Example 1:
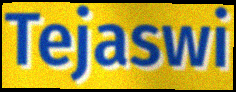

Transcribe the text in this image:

Tejaswi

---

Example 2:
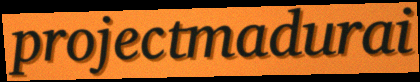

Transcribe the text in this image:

projectmadurai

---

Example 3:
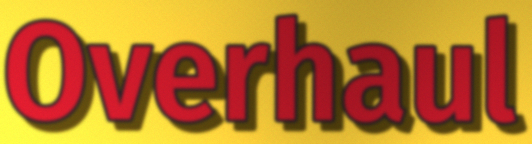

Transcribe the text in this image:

Overhaul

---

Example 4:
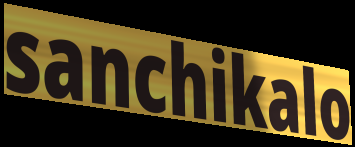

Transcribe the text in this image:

sanchikalo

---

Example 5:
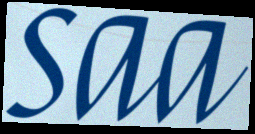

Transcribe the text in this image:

saa